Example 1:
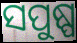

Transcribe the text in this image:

ସପୁଷ୍ପ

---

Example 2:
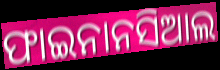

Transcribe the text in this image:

ଫାଇନାନସିଆଲ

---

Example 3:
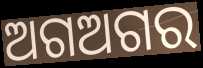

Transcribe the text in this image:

ଅଗଅଗର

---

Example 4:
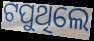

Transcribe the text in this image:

ଟପୁଥିଲେ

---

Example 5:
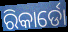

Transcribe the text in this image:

ରିକାର୍ଡୋ